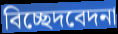
বিচ্ছেদবেদনা